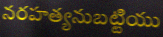
నరహత్యనుబట్టియు